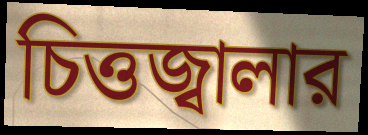
চিত্তজ্বালার